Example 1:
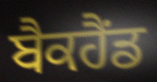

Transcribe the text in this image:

ਬੈਕਹੈਂਡ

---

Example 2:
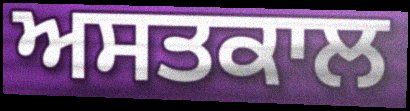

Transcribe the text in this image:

ਅਸਤਕਾਲ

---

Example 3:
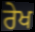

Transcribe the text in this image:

ਰੇਖ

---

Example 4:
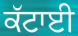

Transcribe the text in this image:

ਕੱਟਾਈ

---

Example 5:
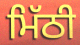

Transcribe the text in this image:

ਮਿੱਠੀ